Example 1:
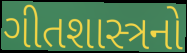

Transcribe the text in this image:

ગીતશાસ્ત્રનો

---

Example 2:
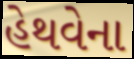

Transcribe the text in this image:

હેથવેના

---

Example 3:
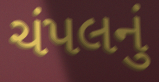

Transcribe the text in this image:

ચંપલનું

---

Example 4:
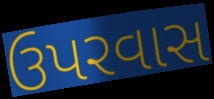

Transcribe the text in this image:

ઉપરવાસ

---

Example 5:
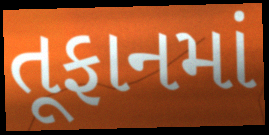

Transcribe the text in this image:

તૂફાનમાં